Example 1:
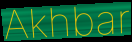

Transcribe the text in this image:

Akhbar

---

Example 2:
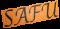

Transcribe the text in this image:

SAFU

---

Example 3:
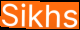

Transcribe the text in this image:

Sikhs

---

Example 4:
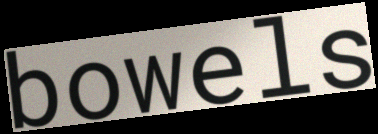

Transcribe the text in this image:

bowels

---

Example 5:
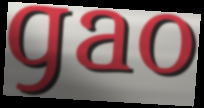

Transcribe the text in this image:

gao